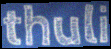
thuli